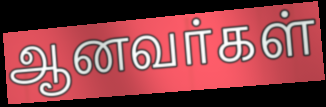
ஆனவர்கள்